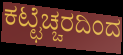
ಕಟ್ಟೆಚ್ಚರದಿಂದ